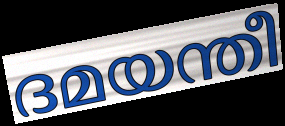
ദമയന്തീ